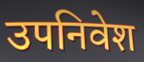
उपनिवेश